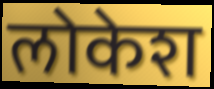
लोकेश